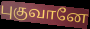
புகுவானே